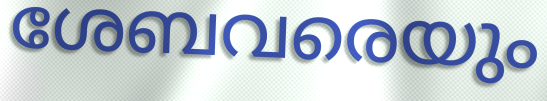
ശേബവരെയും